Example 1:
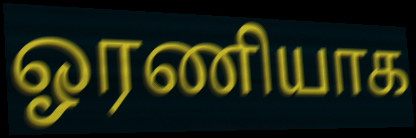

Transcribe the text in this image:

ஓரணியாக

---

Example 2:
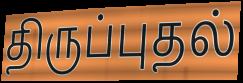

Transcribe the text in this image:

திருப்புதல்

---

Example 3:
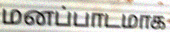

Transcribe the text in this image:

மனப்பாடமாக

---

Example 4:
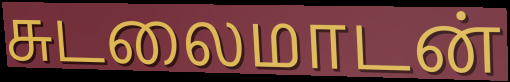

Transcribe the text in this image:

சுடலைமாடன்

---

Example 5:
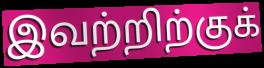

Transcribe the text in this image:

இவற்றிற்குக்